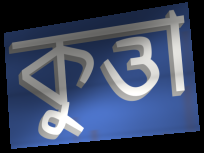
কুত্তা